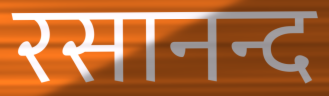
रसानन्द